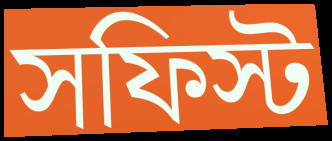
সফিস্ট